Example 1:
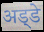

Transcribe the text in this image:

अड्‍डे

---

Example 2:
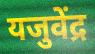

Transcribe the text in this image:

यजुवेंद्र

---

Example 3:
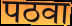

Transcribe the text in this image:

पठवा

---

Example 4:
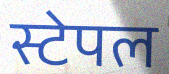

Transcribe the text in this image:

स्टेपल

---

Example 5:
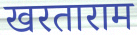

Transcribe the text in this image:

खरताराम